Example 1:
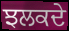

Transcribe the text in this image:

ਝਲਕਦੇ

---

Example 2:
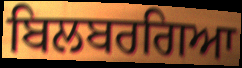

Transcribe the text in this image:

ਬਿਲਬਰਗਿਆ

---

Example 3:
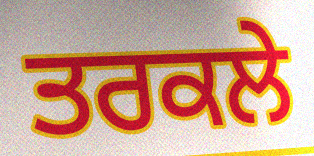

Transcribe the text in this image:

ਤਰਕਲੇ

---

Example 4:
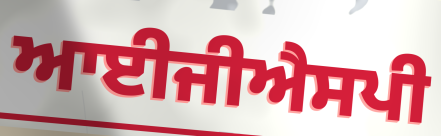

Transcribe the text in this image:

ਆਈਜੀਐਸਪੀ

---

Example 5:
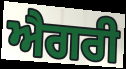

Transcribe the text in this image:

ਐਗਰੀ